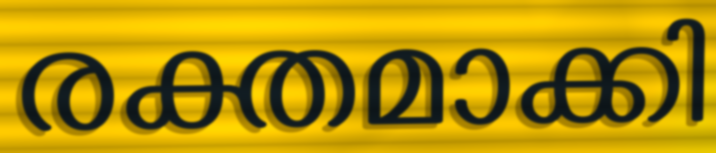
രക്തമാക്കി